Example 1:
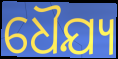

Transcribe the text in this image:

ଧୈଯ୍ୟ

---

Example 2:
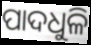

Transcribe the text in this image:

ପାଦଧୁଳି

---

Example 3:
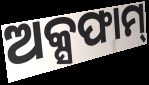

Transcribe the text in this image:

ଅକ୍ସଫାମ୍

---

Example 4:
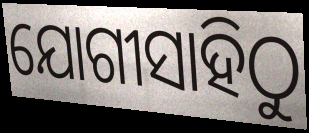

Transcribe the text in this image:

ଯୋଗୀସାହିଠୁ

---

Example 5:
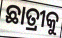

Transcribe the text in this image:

ଛାତ୍ରୀକୁ